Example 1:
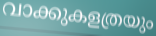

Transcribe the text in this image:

വാക്കുകളത്രയും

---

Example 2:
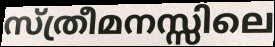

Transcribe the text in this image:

സ്ത്രീമനസ്സിലെ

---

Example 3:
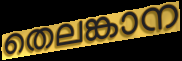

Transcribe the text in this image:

തെലങ്കാന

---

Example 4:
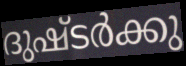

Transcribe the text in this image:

ദുഷ്ടർക്കു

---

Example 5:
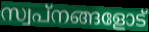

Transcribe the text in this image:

സ്വപ്നങ്ങളോട്